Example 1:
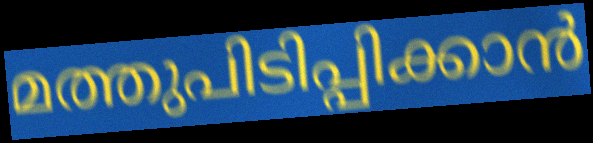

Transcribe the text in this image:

മത്തുപിടിപ്പിക്കാൻ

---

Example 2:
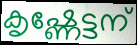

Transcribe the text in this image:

കൃഷ്ണേട്ടന്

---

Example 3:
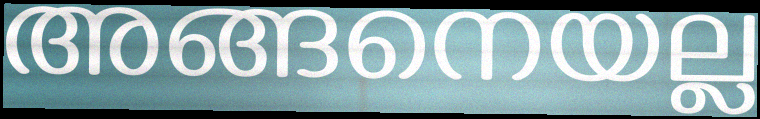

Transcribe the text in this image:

അങ്ങനെയല്ല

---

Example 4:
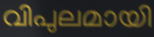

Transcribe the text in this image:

വിപുലമായി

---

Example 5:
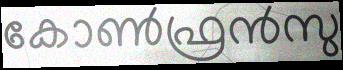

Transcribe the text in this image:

കോൺഫ്രൻസു